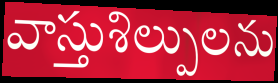
వాస్తుశిల్పులను